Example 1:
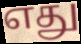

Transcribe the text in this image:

எது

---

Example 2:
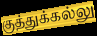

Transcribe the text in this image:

குத்துக்கல்லு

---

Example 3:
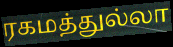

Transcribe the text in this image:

ரகமத்துல்லா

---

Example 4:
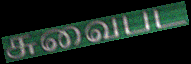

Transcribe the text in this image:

சுவைபட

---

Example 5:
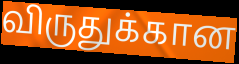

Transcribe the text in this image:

விருதுக்கான